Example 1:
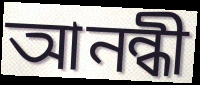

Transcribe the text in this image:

আনন্ধী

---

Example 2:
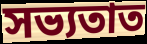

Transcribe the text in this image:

সভ্যতাত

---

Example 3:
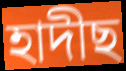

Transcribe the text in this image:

হাদীছ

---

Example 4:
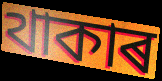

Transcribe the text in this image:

থাকাৰ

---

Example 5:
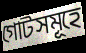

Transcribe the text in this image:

গোটসমূহে